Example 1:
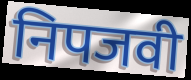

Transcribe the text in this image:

निपजवी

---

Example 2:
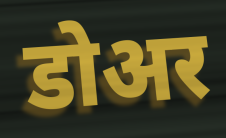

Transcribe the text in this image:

डोअर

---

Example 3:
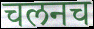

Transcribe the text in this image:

चलनच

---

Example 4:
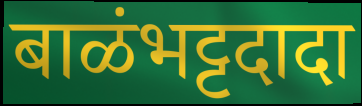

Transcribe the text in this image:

बाळंभट्टदादा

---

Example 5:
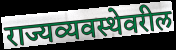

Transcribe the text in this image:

राज्यव्यवस्थेवरील